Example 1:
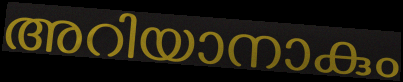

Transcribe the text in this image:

അറിയാനാകും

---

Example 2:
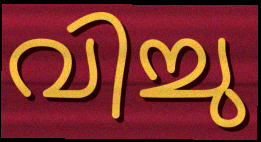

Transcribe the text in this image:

വിച്ചു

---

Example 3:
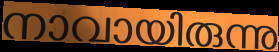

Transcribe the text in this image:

നാവായിരുന്നു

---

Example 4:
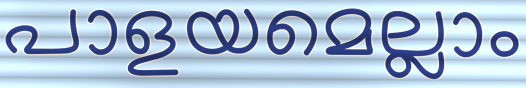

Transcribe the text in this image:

പാളയമെല്ലാം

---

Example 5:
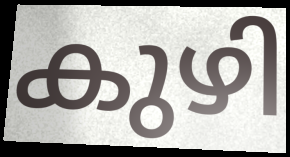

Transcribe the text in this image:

കുഴി